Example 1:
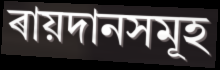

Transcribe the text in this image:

ৰায়দানসমূহ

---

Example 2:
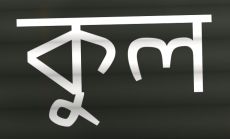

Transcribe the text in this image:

কুল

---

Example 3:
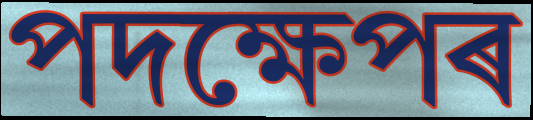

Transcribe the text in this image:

পদক্ষেপৰ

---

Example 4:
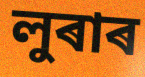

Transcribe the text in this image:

লুৰাৰ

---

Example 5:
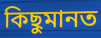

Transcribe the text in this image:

কিছুমানত